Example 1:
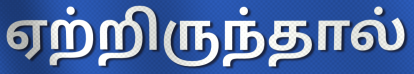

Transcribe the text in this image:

ஏற்றிருந்தால்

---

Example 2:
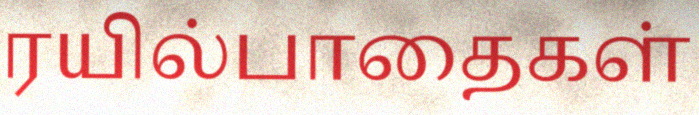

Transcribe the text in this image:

ரயில்பாதைகள்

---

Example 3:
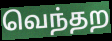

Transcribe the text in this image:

வெந்தற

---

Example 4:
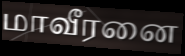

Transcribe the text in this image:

மாவீரனை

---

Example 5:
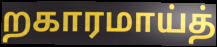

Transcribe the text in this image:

றகாரமாய்த்